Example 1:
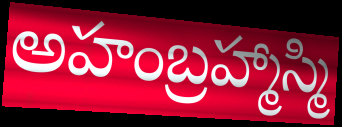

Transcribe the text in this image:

అహంబ్రహ్మాస్మి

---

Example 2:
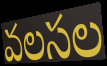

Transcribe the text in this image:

వలసల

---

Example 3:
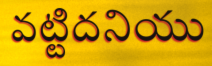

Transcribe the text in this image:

వట్టిదనియు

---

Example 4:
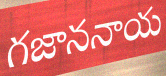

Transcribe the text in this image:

గజాననాయ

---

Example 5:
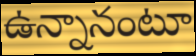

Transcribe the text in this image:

ఉన్నానంటూ